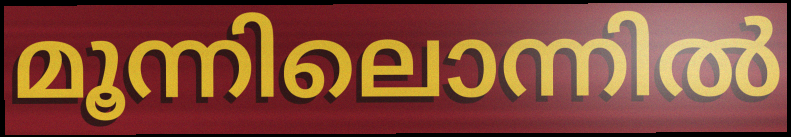
മൂന്നിലൊന്നിൽ